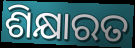
ଶିକ୍ଷାରତ